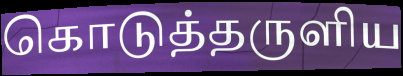
கொடுத்தருளிய